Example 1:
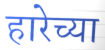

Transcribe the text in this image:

हारेच्या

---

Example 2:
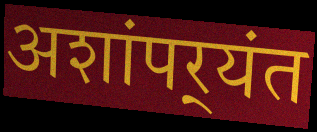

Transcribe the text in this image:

अशांपर्यंत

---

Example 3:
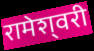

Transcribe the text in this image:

रामेश्वरी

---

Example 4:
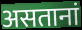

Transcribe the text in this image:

असतानां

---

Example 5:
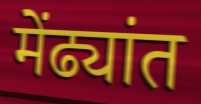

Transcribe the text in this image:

मेंढ्यांत